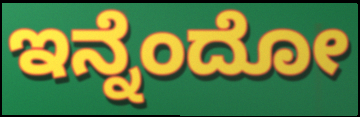
ಇನ್ನೆಂದೋ